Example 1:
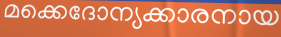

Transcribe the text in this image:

മക്കെദോന്യക്കാരനായ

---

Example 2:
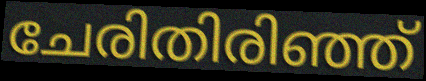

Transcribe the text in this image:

ചേരിതിരിഞ്ഞ്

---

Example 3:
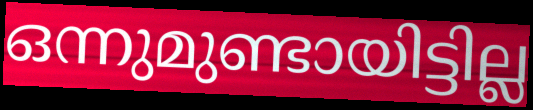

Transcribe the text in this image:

ഒന്നുമുണ്ടായിട്ടില്ല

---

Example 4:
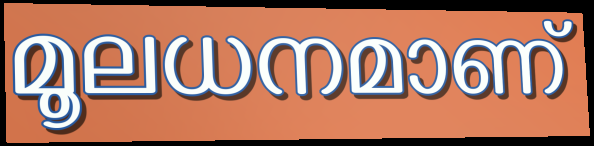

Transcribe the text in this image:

മൂലധനമാണ്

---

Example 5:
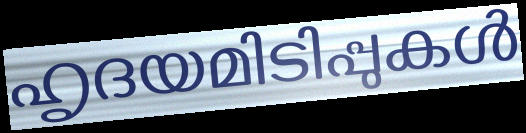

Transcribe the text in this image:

ഹൃദയമിടിപ്പുകൾ